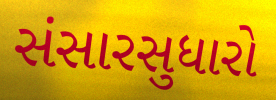
સંસારસુધારો